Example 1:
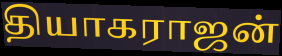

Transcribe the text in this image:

தியாகராஜன்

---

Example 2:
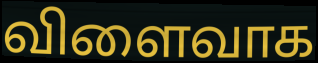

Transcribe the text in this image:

விளைவாக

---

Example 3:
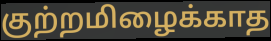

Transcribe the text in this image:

குற்றமிழைக்காத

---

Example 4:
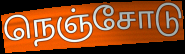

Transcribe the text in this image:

நெஞ்சோடு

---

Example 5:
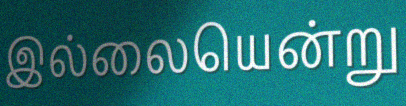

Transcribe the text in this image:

இல்லையென்று